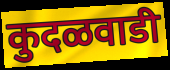
कुदळवाडी